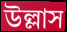
উল্লাস